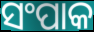
ସଂପାକ